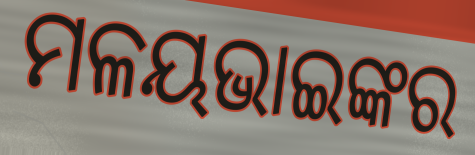
ମଳୟଭାଇଙ୍କର